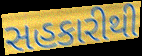
સહકારીથી